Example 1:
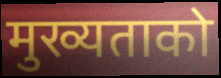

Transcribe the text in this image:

मुख्यताको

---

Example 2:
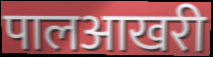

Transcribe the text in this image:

पालआखरी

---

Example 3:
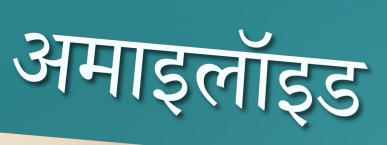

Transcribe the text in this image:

अमाइलॉइड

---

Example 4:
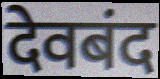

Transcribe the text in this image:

देवबंद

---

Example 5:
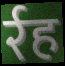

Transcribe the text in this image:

र्रह